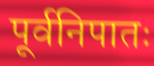
पूर्वनिपातः